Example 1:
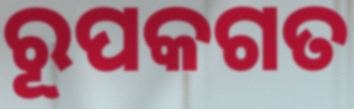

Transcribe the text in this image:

ରୂପକଗତ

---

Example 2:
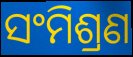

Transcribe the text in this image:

ସଂମିଶ୍ରଣ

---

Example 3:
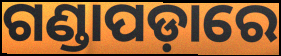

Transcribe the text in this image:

ଗଣ୍ଡାପଡ଼ାରେ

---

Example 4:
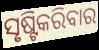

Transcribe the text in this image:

ସୃଷ୍ଟିକରିବାର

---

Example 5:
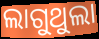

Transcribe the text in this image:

ଲାଗୁଥୁଲା